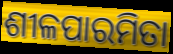
ଶୀଳପାରମିତା